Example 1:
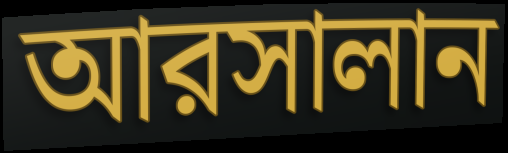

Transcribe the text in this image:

আরসালান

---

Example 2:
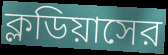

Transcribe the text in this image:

ক্লডিয়াসের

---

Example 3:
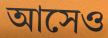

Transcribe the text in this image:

আসেও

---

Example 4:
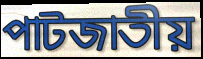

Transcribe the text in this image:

পাটজাতীয়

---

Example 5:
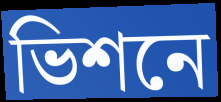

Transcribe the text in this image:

ভিশনে